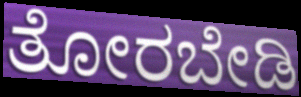
ತೋರಬೇಡಿ